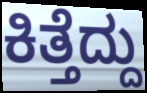
ಕಿತ್ತೆದ್ದು